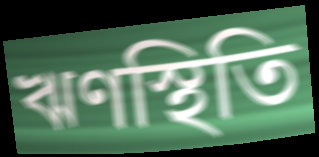
ঋণস্থিতি